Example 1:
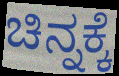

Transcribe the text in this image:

ಚಿನ್ನಕ್ಕೆ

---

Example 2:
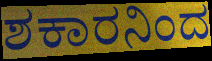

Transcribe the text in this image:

ಶಕಾರನಿಂದ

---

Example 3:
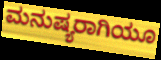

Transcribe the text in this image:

ಮನುಷ್ಯರಾಗಿಯೂ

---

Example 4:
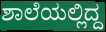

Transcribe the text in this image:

ಶಾಲೆಯಲ್ಲಿದ್ದ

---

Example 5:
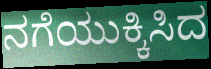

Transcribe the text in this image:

ನಗೆಯುಕ್ಕಿಸಿದ